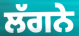
ਲੱਗਨੇ